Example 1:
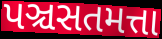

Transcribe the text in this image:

પઞ્ચસતમત્તા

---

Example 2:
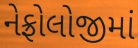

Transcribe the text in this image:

નેફ્રોલોજીમાં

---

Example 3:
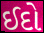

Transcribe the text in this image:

ઈદો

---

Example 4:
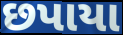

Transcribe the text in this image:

છપાયા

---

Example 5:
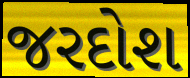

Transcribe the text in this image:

જરદોશ